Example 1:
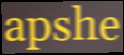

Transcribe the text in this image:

apshe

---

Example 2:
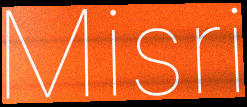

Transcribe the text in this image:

Misri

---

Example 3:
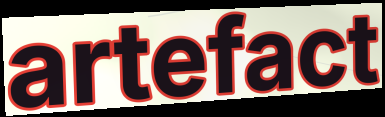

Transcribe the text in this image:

artefact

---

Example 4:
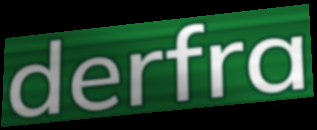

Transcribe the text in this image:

derfra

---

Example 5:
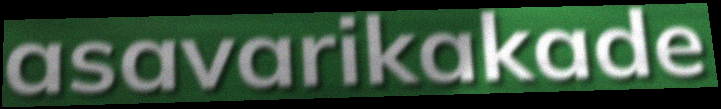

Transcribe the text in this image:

asavarikakade